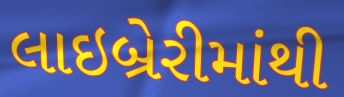
લાઇબ્રેરીમાંથી